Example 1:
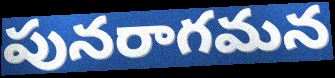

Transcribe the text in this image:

పునరాగమన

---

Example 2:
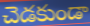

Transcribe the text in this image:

చెడకుండా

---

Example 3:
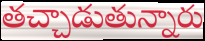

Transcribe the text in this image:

తచ్చాడుతున్నారు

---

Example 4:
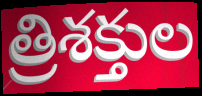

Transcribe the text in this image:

త్రిశక్తుల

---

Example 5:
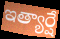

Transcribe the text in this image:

ఇత్యార్షే